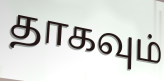
தாகவும்